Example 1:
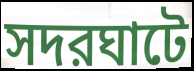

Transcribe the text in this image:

সদরঘাটে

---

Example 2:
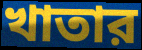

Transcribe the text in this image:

খাতার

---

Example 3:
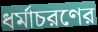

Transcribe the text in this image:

ধর্মাচরণের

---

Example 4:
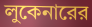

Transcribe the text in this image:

লুকেনারের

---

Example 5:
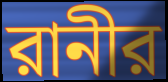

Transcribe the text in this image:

রানীর